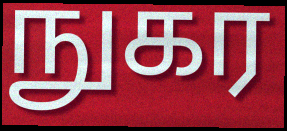
நுகர